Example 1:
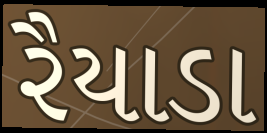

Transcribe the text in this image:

રૈયાડા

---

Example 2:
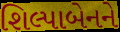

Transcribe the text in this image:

શિલ્પાબેનને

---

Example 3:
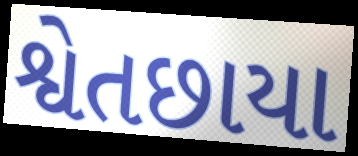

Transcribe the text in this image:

શ્વેતછાયા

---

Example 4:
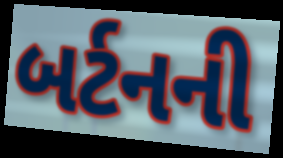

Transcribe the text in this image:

બર્ટનની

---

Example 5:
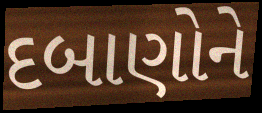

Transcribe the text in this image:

દબાણોને